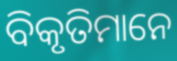
ବିକୃତିମାନେ